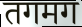
तगमग